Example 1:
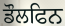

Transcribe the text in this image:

ਡੌਲਫਿਨ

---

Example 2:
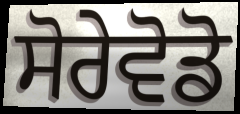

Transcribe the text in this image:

ਸੋਰੇਵੋਡੋ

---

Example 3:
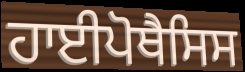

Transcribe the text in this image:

ਹਾਈਪੋਥੈਸਿਸ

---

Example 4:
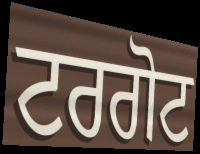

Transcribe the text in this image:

ਟਰਗੋਟ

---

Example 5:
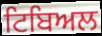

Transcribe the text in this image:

ਟਿਬਿਅਲ